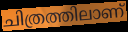
ചിത്രത്തിലാണ്